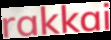
rakkai